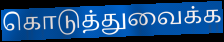
கொடுத்துவைக்க